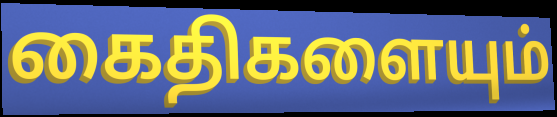
கைதிகளையும்